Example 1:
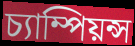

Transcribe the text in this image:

চ্যাম্পিয়ন্স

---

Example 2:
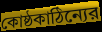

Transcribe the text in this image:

কোষ্ঠকাঠিন্যের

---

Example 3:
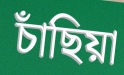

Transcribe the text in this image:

চাঁছিয়া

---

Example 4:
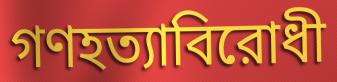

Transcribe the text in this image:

গণহত্যাবিরোধী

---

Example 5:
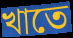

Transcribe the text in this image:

খাতে